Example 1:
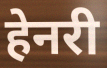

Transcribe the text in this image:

हेनरी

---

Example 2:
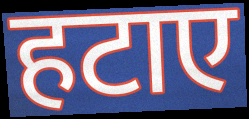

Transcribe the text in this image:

हटाए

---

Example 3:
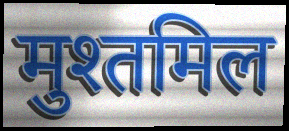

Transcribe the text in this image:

मुश्तमिल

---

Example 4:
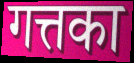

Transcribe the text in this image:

गत्तका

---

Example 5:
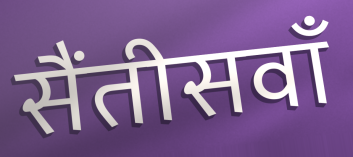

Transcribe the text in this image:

सैंतीसवाँ